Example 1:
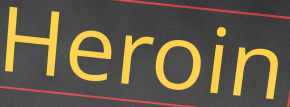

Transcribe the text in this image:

Heroin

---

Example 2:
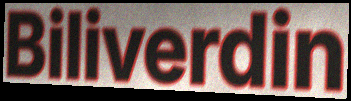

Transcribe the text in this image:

Biliverdin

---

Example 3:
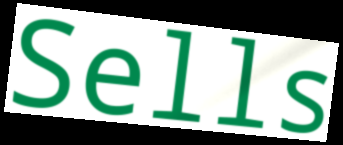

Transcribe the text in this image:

Sells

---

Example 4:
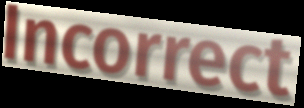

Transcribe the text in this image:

Incorrect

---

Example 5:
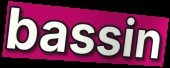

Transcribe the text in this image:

bassin